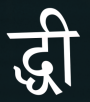
द्धी